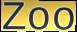
Zoo